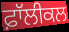
ਫ਼ਾੱਲੀਕਲ